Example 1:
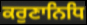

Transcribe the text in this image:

ਕਰੁਣਾਨਿਧਿ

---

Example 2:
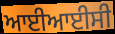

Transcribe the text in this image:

ਆਈਆਈਸੀ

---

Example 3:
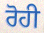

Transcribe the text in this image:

ਰੋਹੀ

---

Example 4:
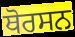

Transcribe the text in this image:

ਥੋਰਸਨ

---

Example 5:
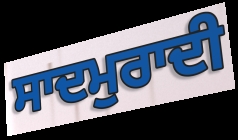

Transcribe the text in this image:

ਸਾਦਮੁਰਾਦੀ